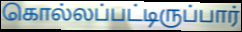
கொல்லப்பட்டிருப்பார்